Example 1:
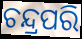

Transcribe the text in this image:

ଚନ୍ଦ୍ରପରି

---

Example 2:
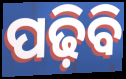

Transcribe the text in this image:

ପଢ଼ିବି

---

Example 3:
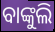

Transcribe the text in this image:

ବାଙ୍କୁଲି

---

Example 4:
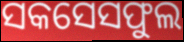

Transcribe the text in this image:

ସକସେସଫୁଲ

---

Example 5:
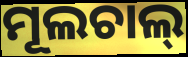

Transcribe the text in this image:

ମୂଲଚାଲ୍